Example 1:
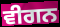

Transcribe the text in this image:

ਵੀਗਨ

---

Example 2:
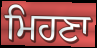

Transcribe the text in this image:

ਮਿਹਣਾ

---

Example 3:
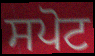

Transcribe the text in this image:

ਸਪੋਟ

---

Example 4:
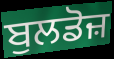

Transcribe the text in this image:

ਬੁਲਡੋਜ਼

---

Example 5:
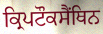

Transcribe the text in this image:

ਕ੍ਰਿਪਟੌਕਸੈਂਥਿਨ